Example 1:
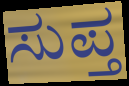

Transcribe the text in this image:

ಸುಪ್ತ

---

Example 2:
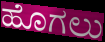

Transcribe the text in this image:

ಹೊಗಲು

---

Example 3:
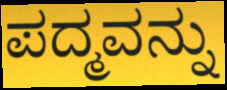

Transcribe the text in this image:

ಪದ್ಮವನ್ನು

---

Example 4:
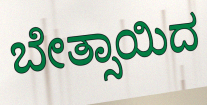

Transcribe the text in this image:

ಬೇತ್ಸಾಯಿದ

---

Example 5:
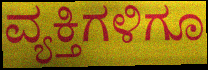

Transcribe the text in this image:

ವ್ಯಕ್ತಿಗಳಿಗೂ